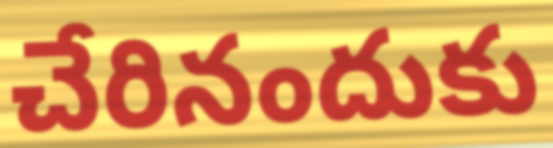
చేరినందుకు